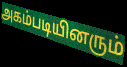
அகம்படியினரும்